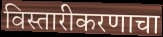
विस्तारीकरणाचा